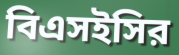
বিএসইসির